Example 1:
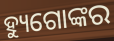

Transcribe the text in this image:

ହ୍ୟୁଗୋଙ୍କର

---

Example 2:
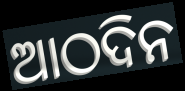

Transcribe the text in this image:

ଆଠଦିନ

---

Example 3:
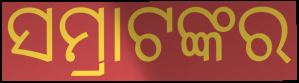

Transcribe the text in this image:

ସମ୍ରାଟଙ୍କର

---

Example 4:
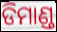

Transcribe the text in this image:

ଡିମାଣ୍ଡ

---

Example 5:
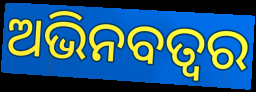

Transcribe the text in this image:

ଅଭିନବତ୍ୱର